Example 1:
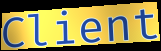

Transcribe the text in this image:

Client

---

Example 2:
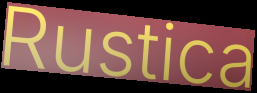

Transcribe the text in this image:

Rustica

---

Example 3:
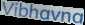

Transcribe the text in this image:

Vibhavna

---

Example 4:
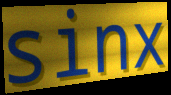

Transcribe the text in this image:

sinx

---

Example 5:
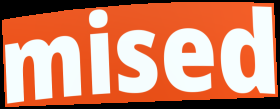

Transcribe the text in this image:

mised